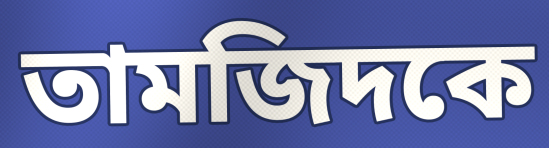
তামজিদকে